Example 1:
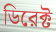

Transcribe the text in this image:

ডিরেক্ট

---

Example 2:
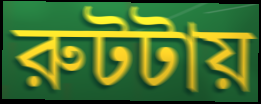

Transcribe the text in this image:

রুটটায়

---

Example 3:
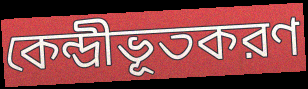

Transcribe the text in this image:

কেন্দ্রীভূতকরণ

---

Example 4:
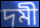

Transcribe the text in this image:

দমী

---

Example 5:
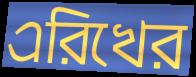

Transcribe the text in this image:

এরিখের